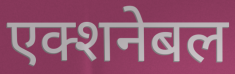
एक्शनेबल